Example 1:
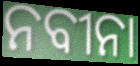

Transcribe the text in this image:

ନବୀନା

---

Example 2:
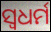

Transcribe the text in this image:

ସ୍ଵଧର୍ମ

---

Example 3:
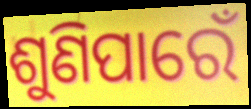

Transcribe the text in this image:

ଶୁଣିପାରେଁ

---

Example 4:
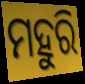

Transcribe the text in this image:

ମହୁରି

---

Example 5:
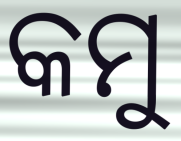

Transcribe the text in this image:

କମୁ